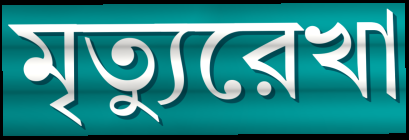
মৃত্যুরেখা